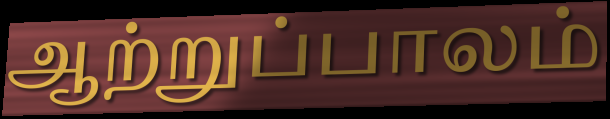
ஆற்றுப்பாலம்